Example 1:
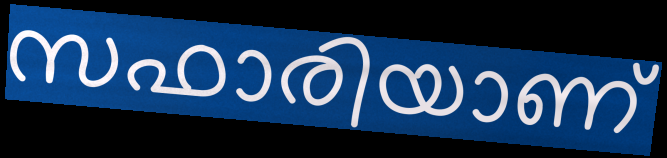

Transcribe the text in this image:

സഫാരിയാണ്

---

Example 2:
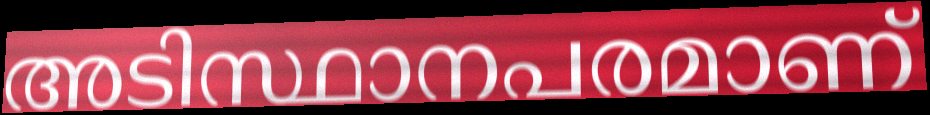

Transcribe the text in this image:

അടിസ്ഥാനപരമാണ്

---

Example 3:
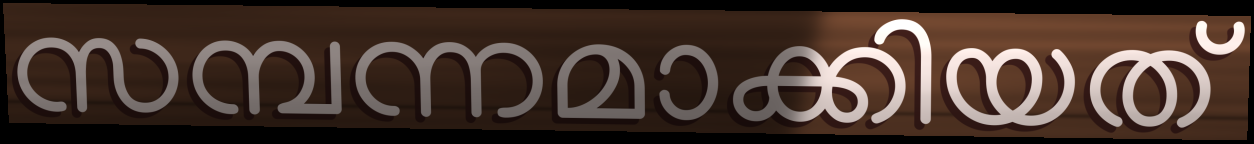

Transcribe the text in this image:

സമ്പന്നമാക്കിയത്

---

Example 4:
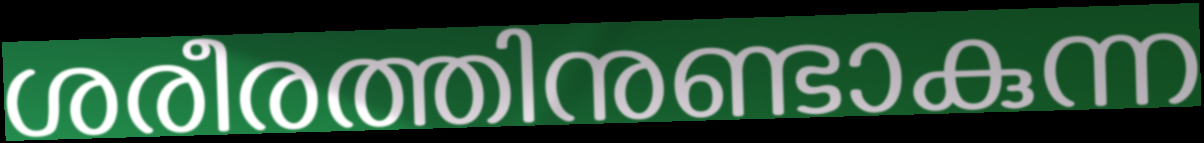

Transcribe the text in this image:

ശരീരത്തിനുണ്ടാകുന്ന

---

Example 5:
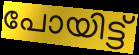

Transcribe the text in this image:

പോയിട്ട്